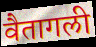
वैतागली